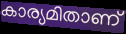
കാര്യമിതാണ്